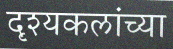
दृश्यकलांच्या